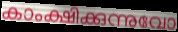
കാംക്ഷിക്കുന്നുവോ